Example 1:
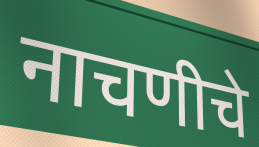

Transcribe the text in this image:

नाचणीचे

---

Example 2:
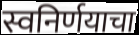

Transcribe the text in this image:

स्वनिर्णयाचा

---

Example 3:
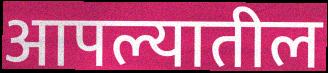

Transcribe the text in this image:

आपल्यातील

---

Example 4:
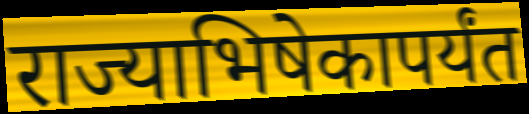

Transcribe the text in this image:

राज्याभिषेकापर्यंत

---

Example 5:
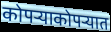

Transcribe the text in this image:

कोपऱ्याकोपऱ्यात